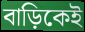
বাড়িকেই